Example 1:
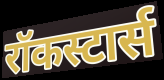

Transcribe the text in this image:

रॉकस्टार्स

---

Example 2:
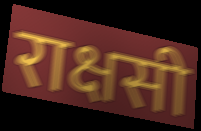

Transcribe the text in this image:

राक्षसी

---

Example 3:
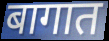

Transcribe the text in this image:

बागात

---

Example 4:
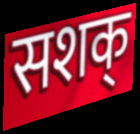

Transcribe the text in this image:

सशक्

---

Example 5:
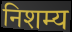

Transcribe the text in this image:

निशम्य